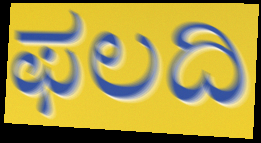
ಫಲದಿ